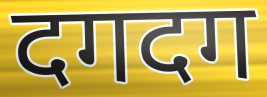
दगदग